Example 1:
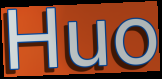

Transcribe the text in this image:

Huo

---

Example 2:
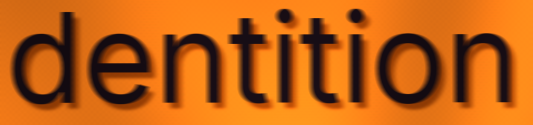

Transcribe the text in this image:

dentition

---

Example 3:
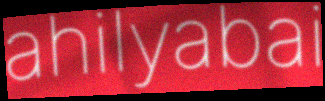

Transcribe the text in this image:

ahilyabai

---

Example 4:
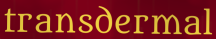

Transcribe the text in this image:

transdermal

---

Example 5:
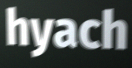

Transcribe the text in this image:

hyach